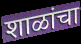
शाळांचा